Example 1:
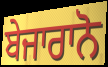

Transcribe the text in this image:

ਬੇਜਾਰਾਨੋ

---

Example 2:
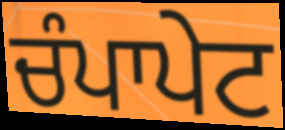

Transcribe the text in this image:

ਚੰਪਾਪੇਟ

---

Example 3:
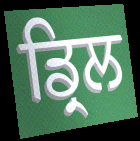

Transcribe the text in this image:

ਡ੍ਰਿਲ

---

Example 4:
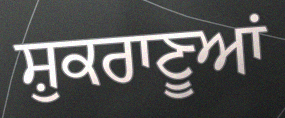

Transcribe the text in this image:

ਸ਼ੁਕਰਾਣੂਆਂ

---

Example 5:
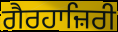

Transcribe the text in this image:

ਗੈਰਹਾਜ਼ਿਰੀ